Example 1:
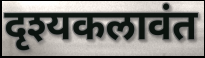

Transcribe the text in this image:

दृश्यकलावंत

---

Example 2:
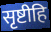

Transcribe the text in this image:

सृष्टीहि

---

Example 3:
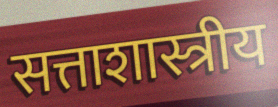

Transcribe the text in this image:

सत्ताशास्त्रीय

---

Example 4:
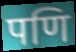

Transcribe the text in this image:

पणि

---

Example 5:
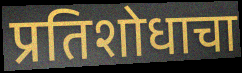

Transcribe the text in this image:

प्रतिशोधाचा